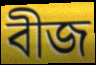
বীজ